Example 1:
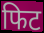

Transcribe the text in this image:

फिट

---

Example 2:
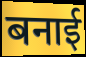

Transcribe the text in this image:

बनाई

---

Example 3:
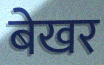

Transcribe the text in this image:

बेखर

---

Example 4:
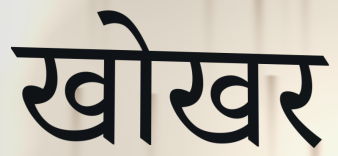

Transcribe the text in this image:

खोखर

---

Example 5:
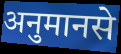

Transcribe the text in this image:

अनुमानसे